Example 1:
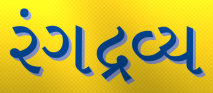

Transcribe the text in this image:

રંગદ્રવ્ય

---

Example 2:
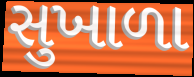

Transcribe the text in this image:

સુખાળા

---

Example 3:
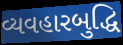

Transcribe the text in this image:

વ્યવહારબુદ્ધિ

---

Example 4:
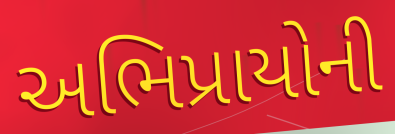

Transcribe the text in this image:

અભિપ્રાયોની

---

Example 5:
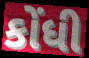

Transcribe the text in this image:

કોંધી